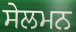
ਸੇਲਮਨ